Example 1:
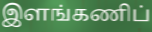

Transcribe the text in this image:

இளங்கணிப்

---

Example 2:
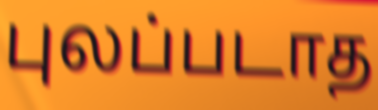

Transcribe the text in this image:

புலப்படாத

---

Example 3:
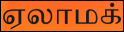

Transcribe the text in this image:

ஏலாமக்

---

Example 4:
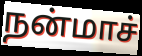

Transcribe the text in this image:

நன்மாச்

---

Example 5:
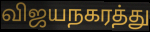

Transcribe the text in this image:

விஜயநகரத்து